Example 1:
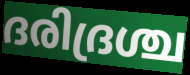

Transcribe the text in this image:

ദരിദ്രശ്ച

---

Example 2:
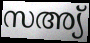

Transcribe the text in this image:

സഅ്യ്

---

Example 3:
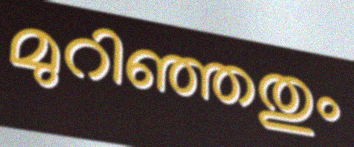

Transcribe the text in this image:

മുറിഞ്ഞതും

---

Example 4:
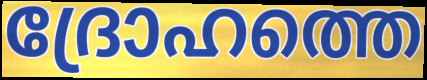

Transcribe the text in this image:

ദ്രോഹത്തെ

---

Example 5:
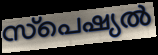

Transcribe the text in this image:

സ്‌പെഷ്യൽ